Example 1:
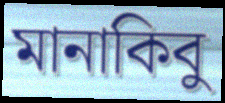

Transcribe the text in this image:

মানাকিবু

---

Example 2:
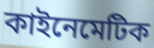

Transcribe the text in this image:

কাইনেমেটিক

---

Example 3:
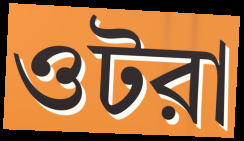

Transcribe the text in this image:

ওটরা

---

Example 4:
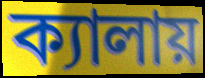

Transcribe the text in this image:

ক্যালায়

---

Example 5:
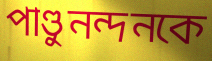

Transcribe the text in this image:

পাণ্ডুনন্দনকে